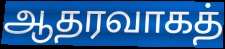
ஆதரவாகத்